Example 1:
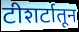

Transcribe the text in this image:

टीशर्टातून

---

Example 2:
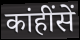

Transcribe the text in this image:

कांहींसें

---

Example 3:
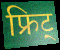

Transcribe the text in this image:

फ्रिट्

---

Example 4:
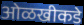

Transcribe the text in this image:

ओळखीकडे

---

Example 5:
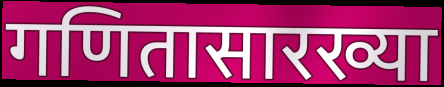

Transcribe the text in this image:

गणितासारख्या